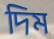
দিম